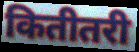
कितीतरी